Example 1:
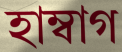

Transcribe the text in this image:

হাম্বাগ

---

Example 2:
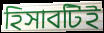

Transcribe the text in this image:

হিসাবটিই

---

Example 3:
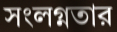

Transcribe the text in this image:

সংলগ্নতার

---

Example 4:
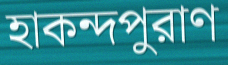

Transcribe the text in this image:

হাকন্দপুরাণ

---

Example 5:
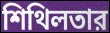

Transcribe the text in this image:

শিথিলতার